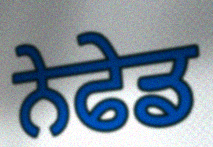
ਨੇਫੇਡ